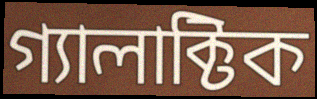
গ্যালাক্টিক